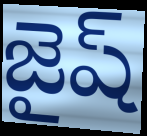
జైష్